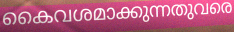
കൈവശമാക്കുന്നതുവരെ